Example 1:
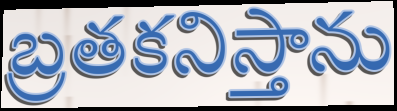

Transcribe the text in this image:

బ్రతకనిస్తాను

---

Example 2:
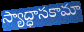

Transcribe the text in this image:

స్యాద్ధాసకామా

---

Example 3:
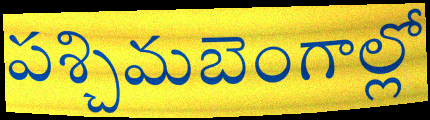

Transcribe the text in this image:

పశ్చిమబెంగాల్లో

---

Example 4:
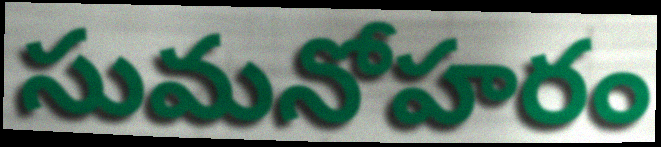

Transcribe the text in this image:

సుమనోహరం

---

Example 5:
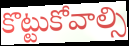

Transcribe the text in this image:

కొట్టుకోవాల్సి